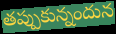
తప్పుకున్నందున